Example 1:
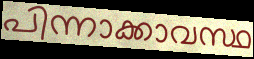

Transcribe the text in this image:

പിന്നാക്കാവസ്ഥ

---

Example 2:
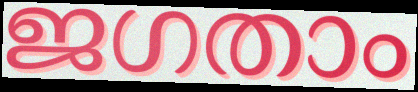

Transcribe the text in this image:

ജഗതാം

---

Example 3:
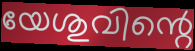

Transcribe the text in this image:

യേശുവിന്റെ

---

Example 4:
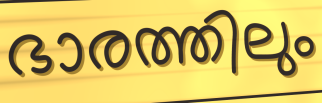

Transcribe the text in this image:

ഭാരത്തിലും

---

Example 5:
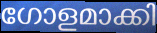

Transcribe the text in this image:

ഗോളമാക്കി